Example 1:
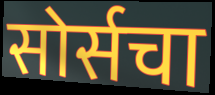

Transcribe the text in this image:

सोर्सचा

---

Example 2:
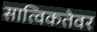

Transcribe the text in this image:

सात्विकतेवर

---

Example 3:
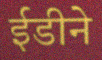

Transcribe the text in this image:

ईडीने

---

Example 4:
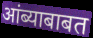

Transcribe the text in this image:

आंब्याबाबत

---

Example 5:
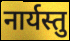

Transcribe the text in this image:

नार्यस्तु